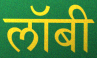
लॉबी